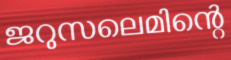
ജറുസലെമിന്റെ